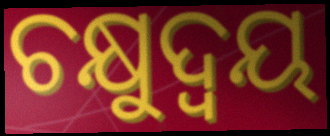
ଚକ୍ଷୁଦ୍ୱୟ